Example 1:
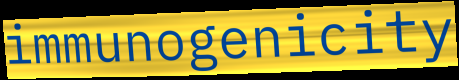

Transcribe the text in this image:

immunogenicity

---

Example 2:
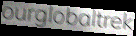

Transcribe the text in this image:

ourglobaltrek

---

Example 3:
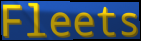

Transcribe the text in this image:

Fleets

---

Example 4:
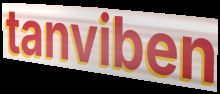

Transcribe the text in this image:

tanviben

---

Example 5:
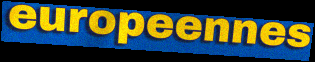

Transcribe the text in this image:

europeennes